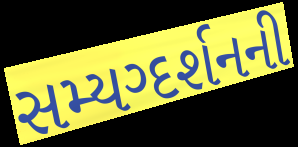
સમ્યગ્દર્શનની